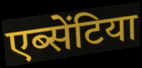
एब्सेंटिया